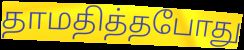
தாமதித்தபோது